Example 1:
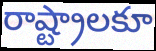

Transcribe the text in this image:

రాష్ట్రాలకూ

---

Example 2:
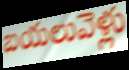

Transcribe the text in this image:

బయలువెళ్లు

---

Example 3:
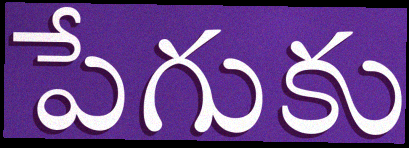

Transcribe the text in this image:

పేగుకు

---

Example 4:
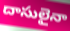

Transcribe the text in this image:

దాసులైనా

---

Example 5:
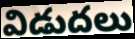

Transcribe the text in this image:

విడుదలు